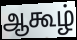
ஆகூழ்